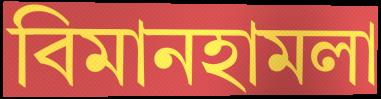
বিমানহামলা